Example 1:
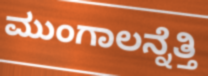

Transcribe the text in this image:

ಮುಂಗಾಲನ್ನೆತ್ತಿ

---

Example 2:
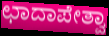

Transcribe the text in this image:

ಛಾದಾಪೇತ್ವಾ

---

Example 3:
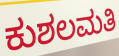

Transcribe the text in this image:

ಕುಶಲಮತಿ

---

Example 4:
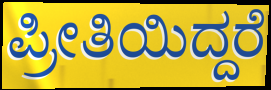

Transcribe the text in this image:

ಪ್ರೀತಿಯಿದ್ದರೆ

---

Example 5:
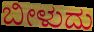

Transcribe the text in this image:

ಬೀಳುದು